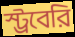
স্ট্রবেরি